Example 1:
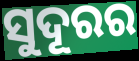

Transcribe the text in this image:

ସୁଦୂରର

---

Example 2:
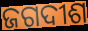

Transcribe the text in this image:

ଜଗଦୀଶ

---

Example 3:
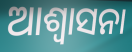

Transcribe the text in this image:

ଆଶ୍ଵାସନା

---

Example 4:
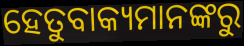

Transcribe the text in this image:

ହେତୁବାକ୍ୟମାନଙ୍କରୁ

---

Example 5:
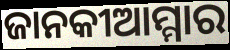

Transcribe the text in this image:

ଜାନକୀଆମ୍ମାର